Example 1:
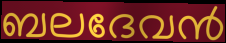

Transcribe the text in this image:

ബലദേവൻ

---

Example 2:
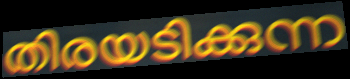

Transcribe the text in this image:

തിരയടിക്കുന്ന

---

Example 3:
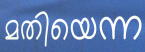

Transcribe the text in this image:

മതിയെന്ന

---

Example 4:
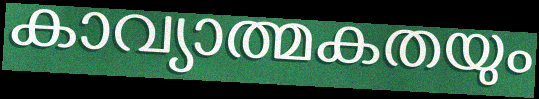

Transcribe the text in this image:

കാവ്യാത്മകതയും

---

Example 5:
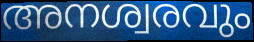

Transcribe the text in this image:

അനശ്വരവും